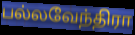
பல்லவேந்திரா